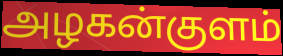
அழகன்குளம்